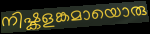
നിഷ്കളങ്കമായൊരു